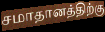
சமாதானத்திற்கு